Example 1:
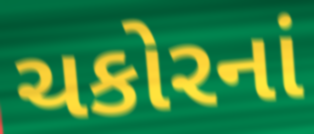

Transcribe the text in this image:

ચકોરનાં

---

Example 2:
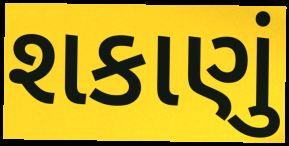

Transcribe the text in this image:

શકાણું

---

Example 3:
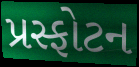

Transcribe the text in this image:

પ્રસ્ફોટન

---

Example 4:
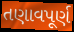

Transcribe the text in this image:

તણાવપૂર્ણ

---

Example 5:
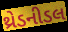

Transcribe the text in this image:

થ્રેડનીડલ